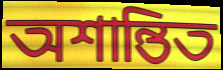
অশান্তিত